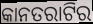
କାନତରାଟିର